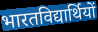
भारतविद्यार्थियों